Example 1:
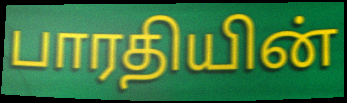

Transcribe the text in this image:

பாரதியின்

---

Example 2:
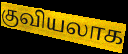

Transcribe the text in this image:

குவியலாக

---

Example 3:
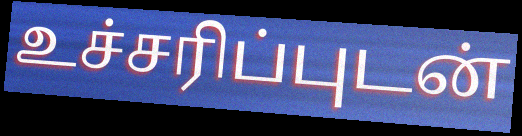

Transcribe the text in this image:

உச்சரிப்புடன்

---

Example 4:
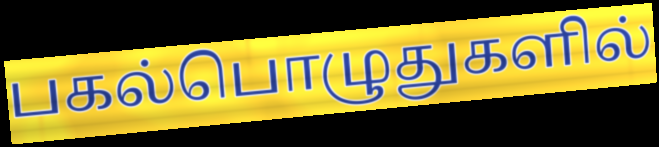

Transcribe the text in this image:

பகல்பொழுதுகளில்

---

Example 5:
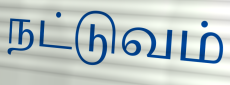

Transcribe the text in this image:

நட்டுவம்